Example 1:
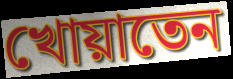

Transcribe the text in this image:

খোয়াতেন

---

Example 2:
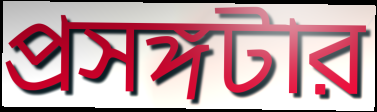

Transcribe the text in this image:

প্রসঙ্গটার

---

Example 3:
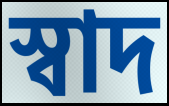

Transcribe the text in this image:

স্বাদ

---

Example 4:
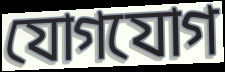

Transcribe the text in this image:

যোগযোগ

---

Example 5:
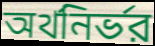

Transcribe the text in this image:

অর্থনির্ভর